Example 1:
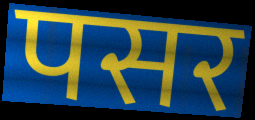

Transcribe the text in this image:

पसर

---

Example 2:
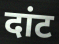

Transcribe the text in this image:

दांट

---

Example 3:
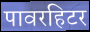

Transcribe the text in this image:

पावरहिटर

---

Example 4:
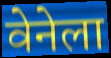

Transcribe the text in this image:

वेनेला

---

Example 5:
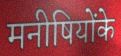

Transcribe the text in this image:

मनीषियोंके